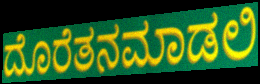
ದೊರೆತನಮಾಡಲಿ